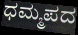
ಧಮ್ಮಪದ